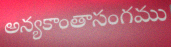
అన్యకాంతాసంగము